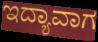
ಇದ್ಯಾವಾಗ